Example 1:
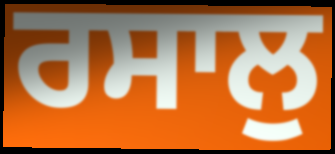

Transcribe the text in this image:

ਰਸਾਲੁ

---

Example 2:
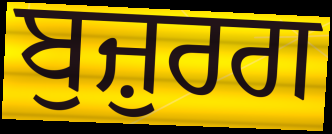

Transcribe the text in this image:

ਬੁਜ਼ੁਰਗ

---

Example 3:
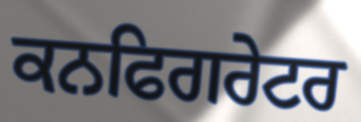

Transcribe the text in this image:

ਕਨਫਿਗਰੇਟਰ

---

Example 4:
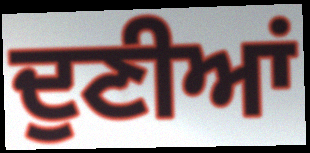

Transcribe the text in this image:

ਦੁਣੀਆਂ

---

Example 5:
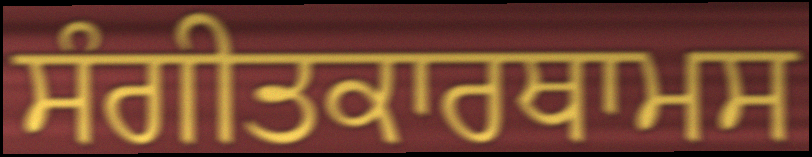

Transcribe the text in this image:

ਸੰਗੀਤਕਾਰਥਾਮਸ